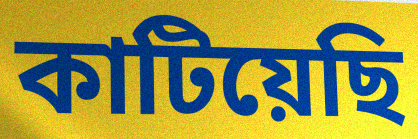
কাটিয়েছি